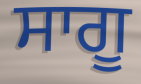
ਸਾਗੂ